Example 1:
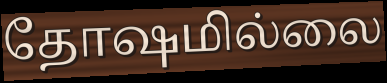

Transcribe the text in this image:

தோஷமில்லை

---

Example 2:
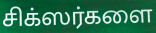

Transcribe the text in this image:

சிக்ஸர்களை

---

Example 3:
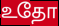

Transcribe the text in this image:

உதோ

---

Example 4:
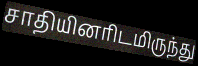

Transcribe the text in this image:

சாதியினரிடமிருந்து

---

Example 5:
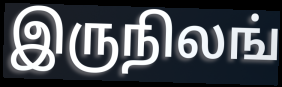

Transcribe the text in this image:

இருநிலங்